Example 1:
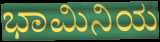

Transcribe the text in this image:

ಭಾಮಿನಿಯ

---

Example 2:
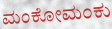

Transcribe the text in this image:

ಮಂಕೋಮಂಕು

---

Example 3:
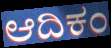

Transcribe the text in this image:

ಆದಿಕಂ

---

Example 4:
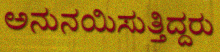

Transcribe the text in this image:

ಅನುನಯಿಸುತ್ತಿದ್ದರು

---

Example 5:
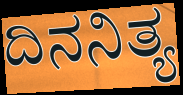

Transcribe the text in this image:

ದಿನನಿತ್ಯ